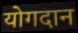
योगदान